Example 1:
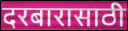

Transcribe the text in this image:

दरबारासाठी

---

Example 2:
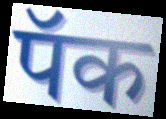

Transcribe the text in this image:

पॅक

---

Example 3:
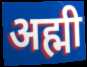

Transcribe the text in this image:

अह्मी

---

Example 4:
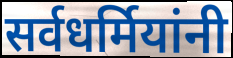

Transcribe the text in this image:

सर्वधर्मियांनी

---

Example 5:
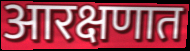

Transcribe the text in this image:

आरक्षणात